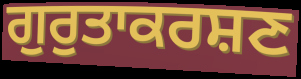
ਗੁਰੁਤਾਕਰਸ਼ਣ